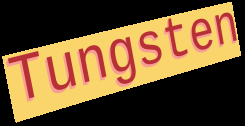
Tungsten